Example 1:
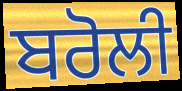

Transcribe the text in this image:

ਬਰੋਲੀ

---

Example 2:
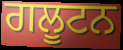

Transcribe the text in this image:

ਗਲੂਟਨ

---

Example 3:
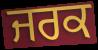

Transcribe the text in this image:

ਜਰਕ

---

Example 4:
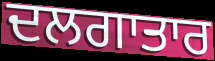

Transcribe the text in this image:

ਦਲਗਾਤਾਰ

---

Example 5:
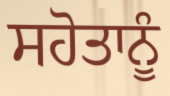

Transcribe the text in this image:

ਸਹੋਤਾਨੂੰ